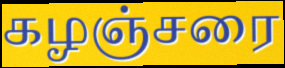
கழஞ்சரை